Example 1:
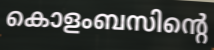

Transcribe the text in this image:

കൊളംബസിന്റെ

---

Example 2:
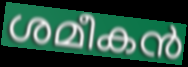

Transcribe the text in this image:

ശമീകൻ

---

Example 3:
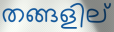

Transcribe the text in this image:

തങ്ങളില്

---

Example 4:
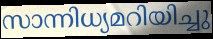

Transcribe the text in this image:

സാന്നിധ്യമറിയിച്ചു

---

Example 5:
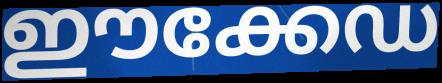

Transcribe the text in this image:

ഈക്കേഡ